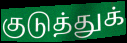
குடுத்துக்